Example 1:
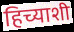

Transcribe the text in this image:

हिच्याशी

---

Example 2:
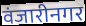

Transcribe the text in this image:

वंजारीनगर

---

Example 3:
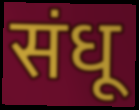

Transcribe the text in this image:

संधू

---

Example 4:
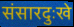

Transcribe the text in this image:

संसारदुःखे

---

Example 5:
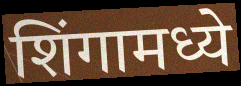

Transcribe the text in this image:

शिंगामध्ये